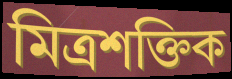
মিত্ৰশক্তিক